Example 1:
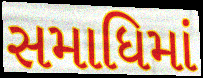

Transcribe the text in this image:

સમાધિમાં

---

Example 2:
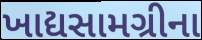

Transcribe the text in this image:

ખાદ્યસામગ્રીના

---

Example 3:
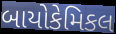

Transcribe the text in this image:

બાયોકેમિકલ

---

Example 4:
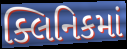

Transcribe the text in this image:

ક્લિનિકમાં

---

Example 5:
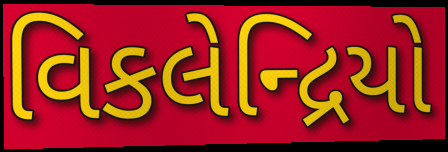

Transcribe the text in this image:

વિકલેન્દ્રિયો